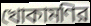
খোকামণির